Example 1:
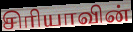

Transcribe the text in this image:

சிரியாவின்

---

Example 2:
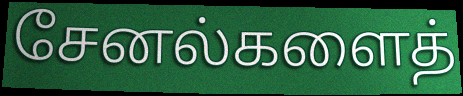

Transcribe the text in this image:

சேனல்களைத்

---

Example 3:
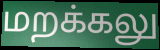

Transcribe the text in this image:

மறக்கலு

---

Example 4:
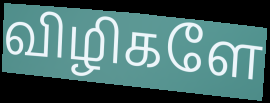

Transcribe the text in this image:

விழிகளே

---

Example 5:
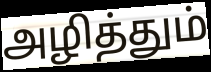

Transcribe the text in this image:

அழித்தும்